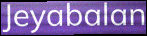
Jeyabalan